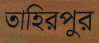
তাহিরপুর